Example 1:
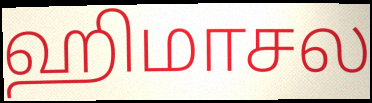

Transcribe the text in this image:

ஹிமாசல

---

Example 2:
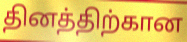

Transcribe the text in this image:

தினத்திற்கான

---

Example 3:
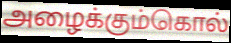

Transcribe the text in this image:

அழைக்கும்கொல்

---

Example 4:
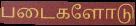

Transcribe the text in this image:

படைகளோடு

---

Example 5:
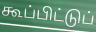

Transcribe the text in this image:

கூப்பிட்டுப்